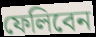
ফেলিবেন